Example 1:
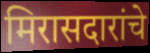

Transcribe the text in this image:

मिरासदारांचे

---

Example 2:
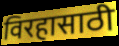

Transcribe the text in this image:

विरहासाठी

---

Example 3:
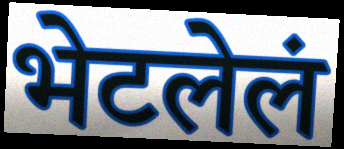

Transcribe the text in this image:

भेटलेलं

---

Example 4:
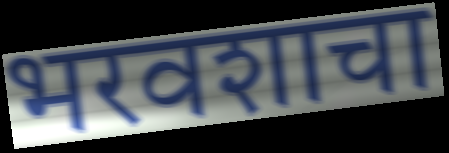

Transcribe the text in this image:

भरवशाचा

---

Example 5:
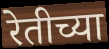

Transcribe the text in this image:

रेतीच्या